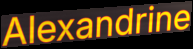
Alexandrine